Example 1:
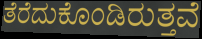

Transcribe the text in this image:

ತೆರೆದುಕೊಂಡಿರುತ್ತವೆ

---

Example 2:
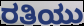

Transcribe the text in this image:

ರತಿಯು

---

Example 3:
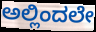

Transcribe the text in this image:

ಅಲ್ಲಿಂದಲೇ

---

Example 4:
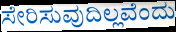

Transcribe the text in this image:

ಸೇರಿಸುವುದಿಲ್ಲವೆಂದು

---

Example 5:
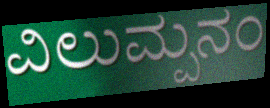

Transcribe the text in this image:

ವಿಲುಮ್ಪನಂ